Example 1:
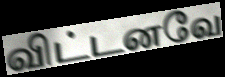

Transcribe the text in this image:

விட்டனவே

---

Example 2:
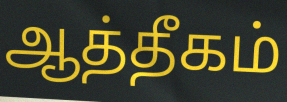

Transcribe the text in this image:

ஆத்தீகம்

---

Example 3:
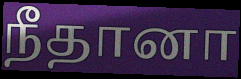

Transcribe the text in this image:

நீதானா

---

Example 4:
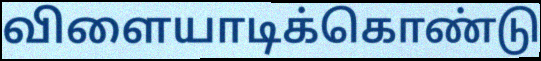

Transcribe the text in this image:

விளையாடிக்கொண்டு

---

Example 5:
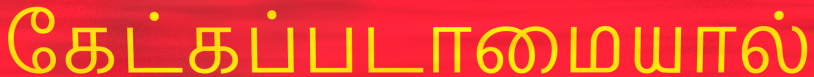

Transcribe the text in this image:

கேட்கப்படாமையால்